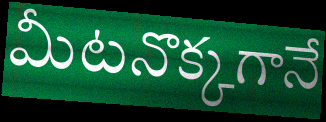
మీటనొక్కగానే